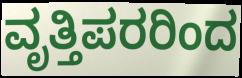
ವೃತ್ತಿಪರರಿಂದ